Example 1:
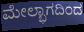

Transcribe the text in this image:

ಮೇಲ್ಭಾಗದಿಂದ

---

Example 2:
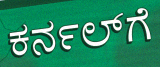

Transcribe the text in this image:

ಕರ್ನಲ್‌ಗೆ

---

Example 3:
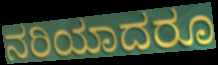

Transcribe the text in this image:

ನರಿಯಾದರೂ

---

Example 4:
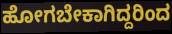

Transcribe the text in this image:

ಹೋಗಬೇಕಾಗಿದ್ದರಿಂದ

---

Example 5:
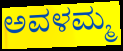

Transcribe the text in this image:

ಅವಳಮ್ಮ